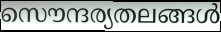
സൌന്ദര്യതലങ്ങൾ